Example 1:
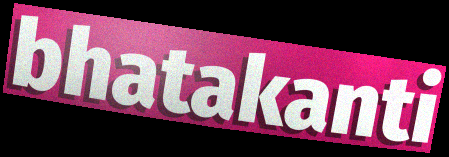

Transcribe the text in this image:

bhatakanti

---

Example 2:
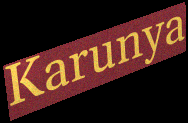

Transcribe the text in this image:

Karunya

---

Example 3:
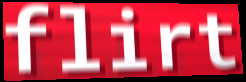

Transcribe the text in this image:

flirt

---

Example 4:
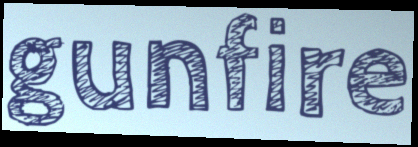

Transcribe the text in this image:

gunfire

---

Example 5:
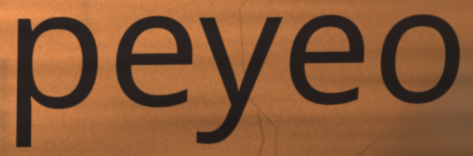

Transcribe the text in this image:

peyeo